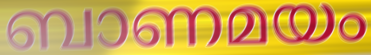
ബാണമയം